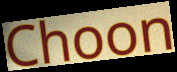
Choon